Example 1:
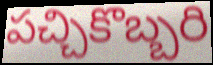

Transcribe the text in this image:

పచ్చికొబ్బరి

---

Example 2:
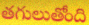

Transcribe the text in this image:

తగులుతోంది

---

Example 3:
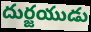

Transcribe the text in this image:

దుర్జయుడు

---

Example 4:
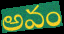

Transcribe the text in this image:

అవం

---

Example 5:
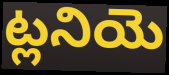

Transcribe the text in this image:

ట్లనియె